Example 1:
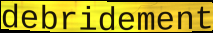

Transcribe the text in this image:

debridement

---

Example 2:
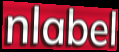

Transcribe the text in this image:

nlabel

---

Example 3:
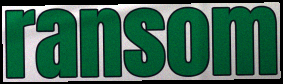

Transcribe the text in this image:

ransom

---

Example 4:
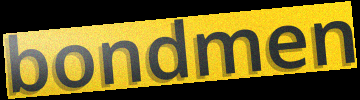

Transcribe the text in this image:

bondmen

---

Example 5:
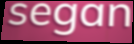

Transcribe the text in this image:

segan